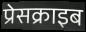
प्रेसक्राइब